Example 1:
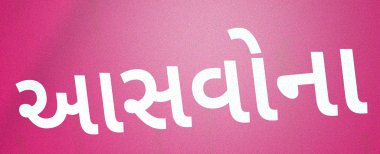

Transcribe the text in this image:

આસવોના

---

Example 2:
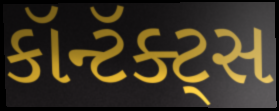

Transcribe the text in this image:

કૉન્ટૅક્ટ્સ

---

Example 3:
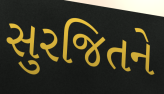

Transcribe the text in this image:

સુરજિતને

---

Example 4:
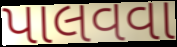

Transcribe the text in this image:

પાલવવા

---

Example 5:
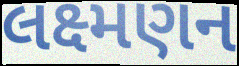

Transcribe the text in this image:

લક્ષ્મણન